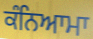
ਕੰਨਿਆਮਾ